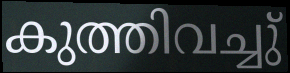
കുത്തിവച്ചു്